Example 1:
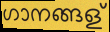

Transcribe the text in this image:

ഗാനങ്ങള്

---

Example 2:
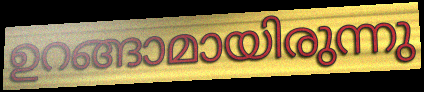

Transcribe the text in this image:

ഉറങ്ങാമായിരുന്നു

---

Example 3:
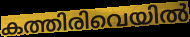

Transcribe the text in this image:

കത്തിരിവെയിൽ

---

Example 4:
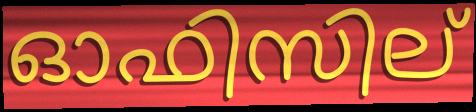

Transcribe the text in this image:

ഓഫിസില്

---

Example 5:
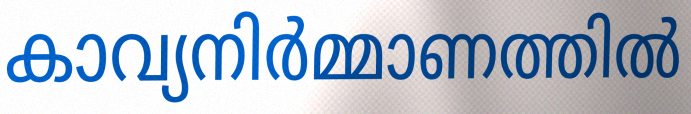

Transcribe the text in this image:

കാവ്യനിർമ്മാണത്തിൽ